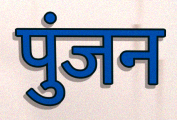
पुंजन